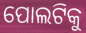
ପୋଲଟିକୁ